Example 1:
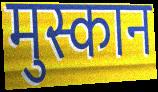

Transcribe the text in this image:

मुस्‍कान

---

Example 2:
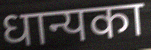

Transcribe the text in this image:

धान्यका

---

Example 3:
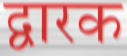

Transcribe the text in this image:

द्वारक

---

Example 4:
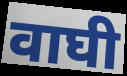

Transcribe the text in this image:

वाघी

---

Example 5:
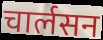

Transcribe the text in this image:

चार्लसन